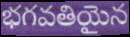
భగవతియైన